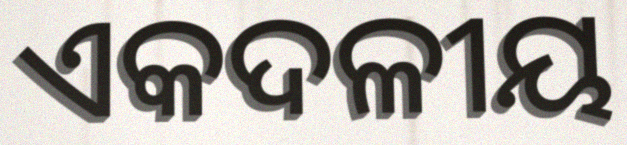
ଏକଦଳୀୟ